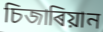
চিজাৰিয়ান